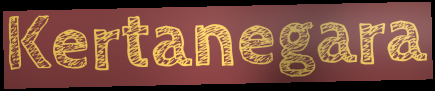
Kertanegara